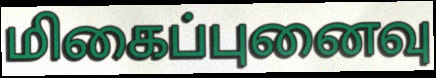
மிகைப்புனைவு